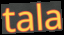
tala